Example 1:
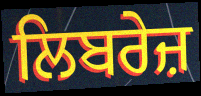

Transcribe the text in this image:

ਲਿਬਰੇਜ਼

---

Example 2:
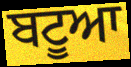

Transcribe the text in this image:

ਬਟੂਆ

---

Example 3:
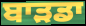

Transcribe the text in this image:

ਬਾੜਡਾ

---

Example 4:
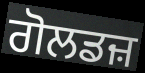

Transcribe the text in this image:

ਗੋਲਡਜ਼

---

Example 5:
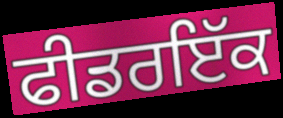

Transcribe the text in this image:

ਫੀਡਰਇੱਕ